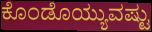
ಕೊಂಡೊಯ್ಯುವಷ್ಟು